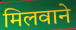
मिलवाने